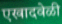
एखादवेळी